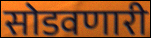
सोडवणारी